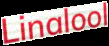
Linalool